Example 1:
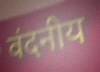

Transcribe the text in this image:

वंदनीय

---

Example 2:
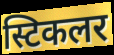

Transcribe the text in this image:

स्टिकलर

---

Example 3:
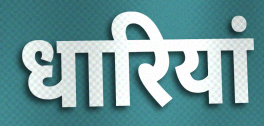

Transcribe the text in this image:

धारियां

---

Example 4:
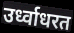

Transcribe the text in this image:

उर्ध्वाधरत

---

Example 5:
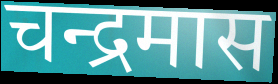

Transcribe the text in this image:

चन्द्रमास